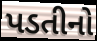
પડતીનો